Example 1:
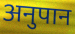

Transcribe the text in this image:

अनुपान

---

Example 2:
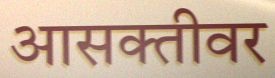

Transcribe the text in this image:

आसक्तीवर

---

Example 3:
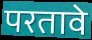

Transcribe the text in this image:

परतावे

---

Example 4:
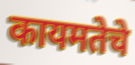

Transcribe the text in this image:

कायमतेचे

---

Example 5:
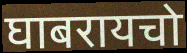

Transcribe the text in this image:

घाबरायचो